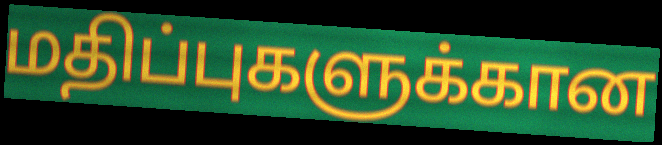
மதிப்புகளுக்கான